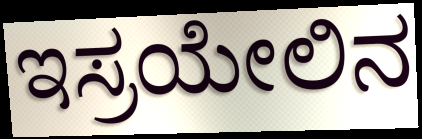
ಇಸ್ರಯೇಲಿನ